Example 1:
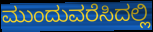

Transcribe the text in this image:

ಮುಂದುವರೆಸಿದಲ್ಲಿ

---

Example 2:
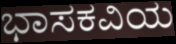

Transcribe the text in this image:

ಭಾಸಕವಿಯ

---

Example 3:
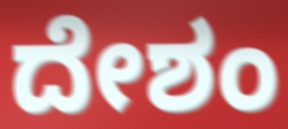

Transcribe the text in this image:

ದೇಶಂ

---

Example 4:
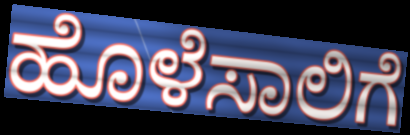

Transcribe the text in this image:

ಹೊಳೆಸಾಲಿಗೆ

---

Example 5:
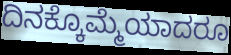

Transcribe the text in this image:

ದಿನಕ್ಕೊಮ್ಮೆಯಾದರೂ